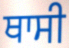
ਥਾਸੀ